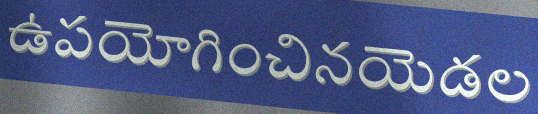
ఉపయోగించినయెడల